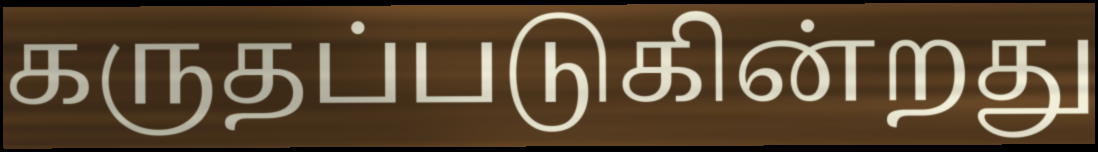
கருதப்படுகின்றது